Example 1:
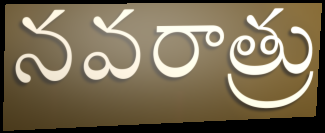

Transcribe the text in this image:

నవరాత్రు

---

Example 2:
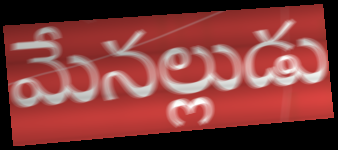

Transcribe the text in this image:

మేనల్లుడు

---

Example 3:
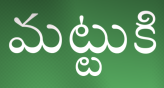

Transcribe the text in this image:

మట్టుకి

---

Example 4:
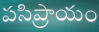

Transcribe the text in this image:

పసిప్రాయం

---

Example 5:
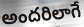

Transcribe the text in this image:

అందరిలాగే